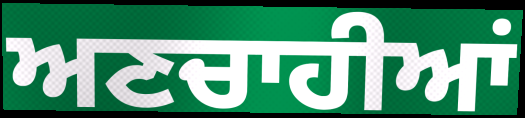
ਅਣਚਾਹੀਆਂ